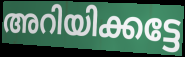
അറിയിക്കട്ടേ